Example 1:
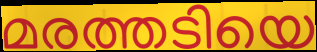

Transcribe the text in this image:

മരത്തടിയെ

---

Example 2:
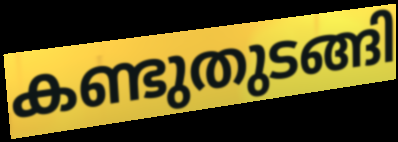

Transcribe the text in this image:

കണ്ടുതുടങ്ങി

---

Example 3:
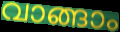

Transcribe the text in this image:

വാങ്ങാം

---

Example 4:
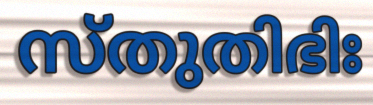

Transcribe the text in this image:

സ്തുതിഭിഃ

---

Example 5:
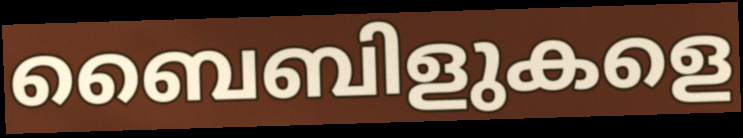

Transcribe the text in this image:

ബൈബിളുകളെ